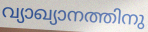
വ്യാഖ്യാനത്തിനു